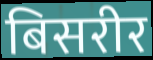
बिसरीर